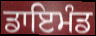
ਡਾਇਮੰਡ